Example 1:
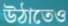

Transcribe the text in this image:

উঠাতেও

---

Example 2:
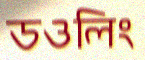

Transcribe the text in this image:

ডওলিং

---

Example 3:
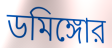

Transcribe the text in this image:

ডমিঙ্গোর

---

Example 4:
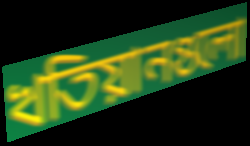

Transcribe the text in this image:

খতিয়ানগুলো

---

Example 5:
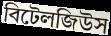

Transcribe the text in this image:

বিটেলজিউস